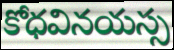
కోధవినయస్స